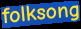
folksong